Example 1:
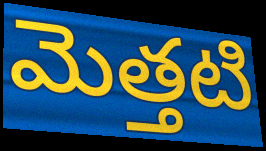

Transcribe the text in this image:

మెత్తటి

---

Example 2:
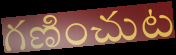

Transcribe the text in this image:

గణించుట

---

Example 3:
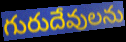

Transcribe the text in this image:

గురుదేవులను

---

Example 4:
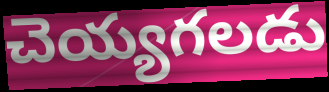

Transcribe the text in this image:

చెయ్యగలడు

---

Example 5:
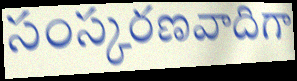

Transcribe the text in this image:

సంస్కరణవాదిగా